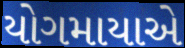
યોગમાયાએ